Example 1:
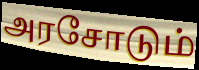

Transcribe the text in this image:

அரசோடும்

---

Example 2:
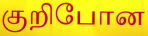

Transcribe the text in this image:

குறிபோன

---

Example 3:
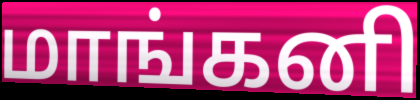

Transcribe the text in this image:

மாங்கனி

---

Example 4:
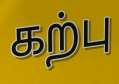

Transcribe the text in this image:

கற்பு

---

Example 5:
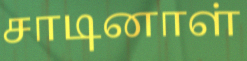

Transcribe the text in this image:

சாடினாள்